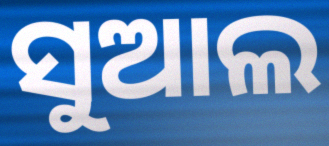
ସୁଆଲ